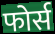
फोर्स